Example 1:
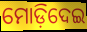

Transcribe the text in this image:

ମୋଡ଼ିଦେଇ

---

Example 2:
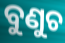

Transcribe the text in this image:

ବୁଣୁଚ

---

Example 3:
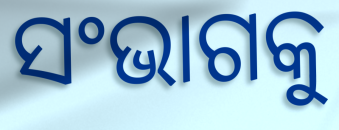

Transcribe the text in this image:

ସଂଭାଗକୁ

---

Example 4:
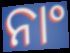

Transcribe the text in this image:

ନାଂ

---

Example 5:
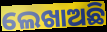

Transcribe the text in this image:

ଲେଖାଅଛି